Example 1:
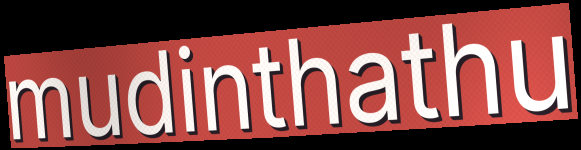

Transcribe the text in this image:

mudinthathu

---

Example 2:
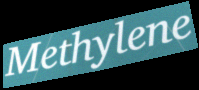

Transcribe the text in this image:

Methylene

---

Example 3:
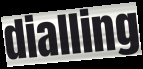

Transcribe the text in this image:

dialling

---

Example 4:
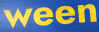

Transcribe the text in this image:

ween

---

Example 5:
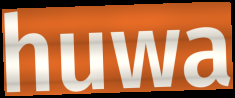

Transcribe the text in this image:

huwa